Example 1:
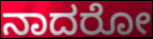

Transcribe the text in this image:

ನಾದರೋ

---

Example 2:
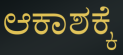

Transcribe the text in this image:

ಆಕಾಶಕ್ಕೆ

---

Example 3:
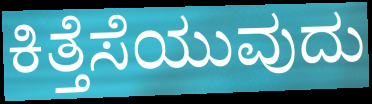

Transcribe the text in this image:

ಕಿತ್ತೆಸೆಯುವುದು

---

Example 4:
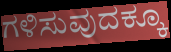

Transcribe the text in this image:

ಗಳಿಸುವುದಕ್ಕೂ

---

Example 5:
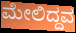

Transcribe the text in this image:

ಮೇಲಿದ್ದವ